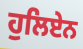
ਹੁਲਿਏਨ